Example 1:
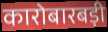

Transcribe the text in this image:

कारोबारबड़ी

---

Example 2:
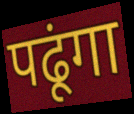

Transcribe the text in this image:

पढूंगा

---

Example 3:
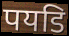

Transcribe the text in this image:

पयडि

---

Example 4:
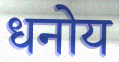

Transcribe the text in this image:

धनोय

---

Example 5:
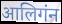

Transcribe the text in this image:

आलिगंन